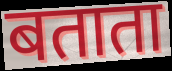
बताता